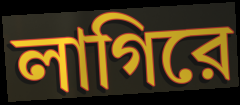
লাগিরে